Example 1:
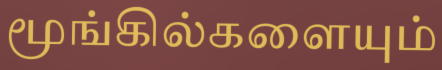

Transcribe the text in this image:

மூங்கில்களையும்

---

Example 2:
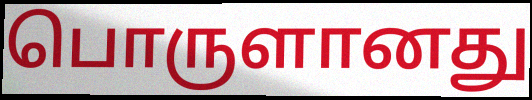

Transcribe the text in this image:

பொருளானது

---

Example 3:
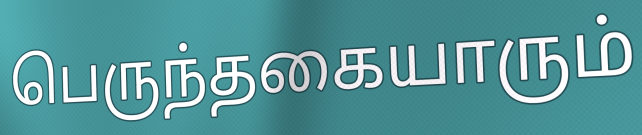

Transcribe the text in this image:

பெருந்தகையாரும்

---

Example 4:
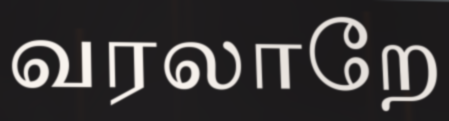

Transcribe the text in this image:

வரலாறே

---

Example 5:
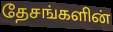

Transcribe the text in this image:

தேசங்களின்